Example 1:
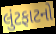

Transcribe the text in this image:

લુંટફાટનો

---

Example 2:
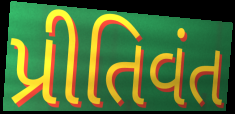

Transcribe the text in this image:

પ્રીતિવંત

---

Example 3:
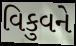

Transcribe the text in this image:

વિકુવને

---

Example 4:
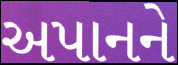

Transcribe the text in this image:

અપાનને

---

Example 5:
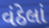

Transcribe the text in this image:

વંઠેલાં